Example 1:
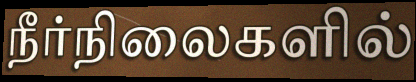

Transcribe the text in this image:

நீர்நிலைகளில்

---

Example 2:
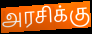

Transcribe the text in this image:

அரசிக்கு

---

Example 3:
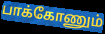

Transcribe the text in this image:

பாக்கோணும்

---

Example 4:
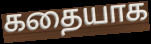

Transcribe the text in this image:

கதையாக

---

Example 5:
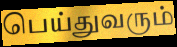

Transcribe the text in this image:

பெய்துவரும்